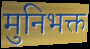
मुनिभक्त